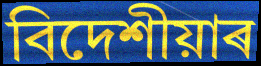
বিদেশীয়াৰ